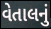
વેતાલનું